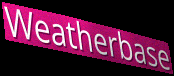
Weatherbase